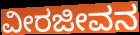
ವೀರಜೀವನ